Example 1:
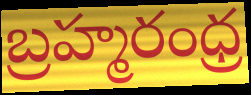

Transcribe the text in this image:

బ్రహ్మరంధ్ర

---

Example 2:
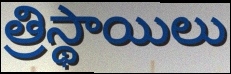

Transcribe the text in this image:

త్రిస్థాయిలు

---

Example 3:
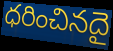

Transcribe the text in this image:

ధరించినదై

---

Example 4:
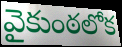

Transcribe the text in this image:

వైకుంఠలోక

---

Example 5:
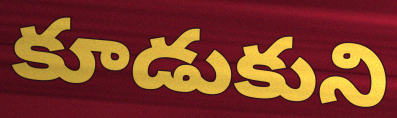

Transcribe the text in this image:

కూడుకుని